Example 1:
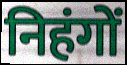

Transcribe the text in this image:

निहंगों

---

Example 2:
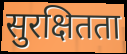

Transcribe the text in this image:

सुरक्षितता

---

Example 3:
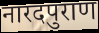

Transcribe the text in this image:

नारदपुराण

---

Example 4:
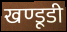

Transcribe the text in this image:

खण्डूडी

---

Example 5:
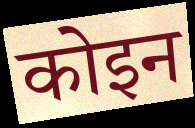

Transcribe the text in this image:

कोइन